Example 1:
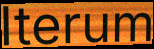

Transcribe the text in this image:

Iterum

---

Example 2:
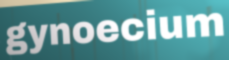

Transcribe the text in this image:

gynoecium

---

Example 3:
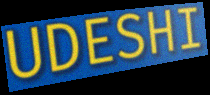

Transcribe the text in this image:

UDESHI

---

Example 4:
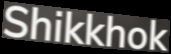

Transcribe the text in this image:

Shikkhok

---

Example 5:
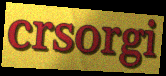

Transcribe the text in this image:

crsorgi